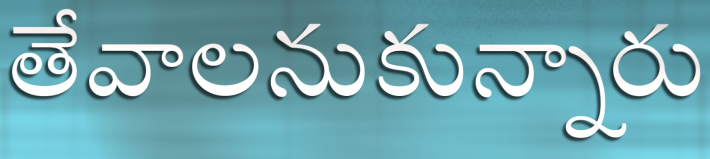
తేవాలనుకున్నారు